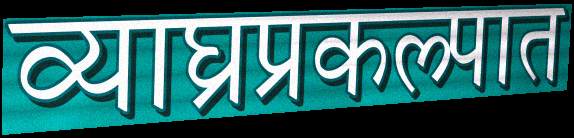
व्याघ्रप्रकल्पात